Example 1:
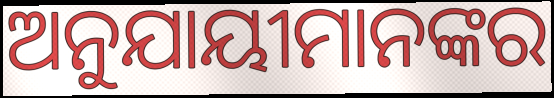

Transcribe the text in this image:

ଅନୁଯାୟୀମାନଙ୍କର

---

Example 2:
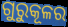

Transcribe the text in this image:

ଗୁରୁକୂଳର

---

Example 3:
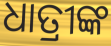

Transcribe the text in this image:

ଧାତ୍ରୀଙ୍କ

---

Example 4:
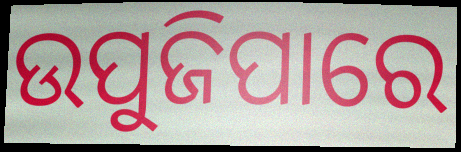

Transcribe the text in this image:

ଉପୁଜିପାରେ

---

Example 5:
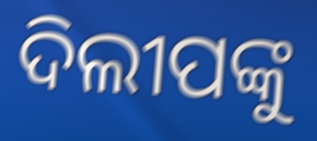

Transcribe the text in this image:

ଦିଲୀପଙ୍କୁ